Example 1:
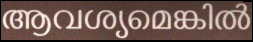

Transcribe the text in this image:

ആവശ്യമെങ്കിൽ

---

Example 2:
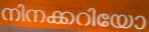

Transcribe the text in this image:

നിനക്കറിയോ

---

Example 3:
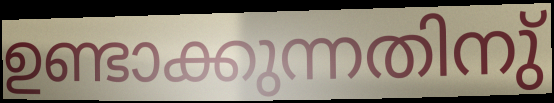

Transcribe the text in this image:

ഉണ്ടാക്കുന്നതിനു്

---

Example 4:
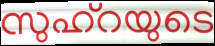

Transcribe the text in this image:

സുഹ്റയുടെ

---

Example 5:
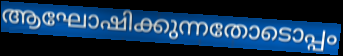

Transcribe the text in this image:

ആഘോഷിക്കുന്നതോടൊപ്പം